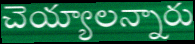
చెయ్యాలన్నారు